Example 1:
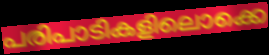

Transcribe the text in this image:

പരിപാടികളിലൊക്കെ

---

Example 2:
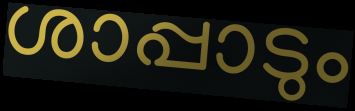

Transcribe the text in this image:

ശാപ്പാടും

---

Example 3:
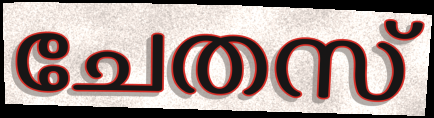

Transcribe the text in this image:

ചേതസ്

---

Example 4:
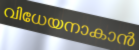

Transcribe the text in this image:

വിധേയനാകാൻ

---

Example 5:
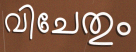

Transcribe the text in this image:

വിചേതും